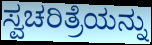
ಸ್ವಚರಿತ್ರೆಯನ್ನು